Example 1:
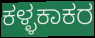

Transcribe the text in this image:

ಕಳ್ಳಕಾಕರ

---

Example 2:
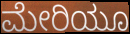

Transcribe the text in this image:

ಮೇರಿಯೂ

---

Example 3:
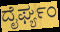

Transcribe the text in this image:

ದೈರ್ಘ್ಯಂ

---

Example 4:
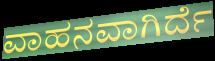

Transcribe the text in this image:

ವಾಹನವಾಗಿರ್ದೆ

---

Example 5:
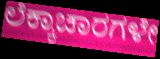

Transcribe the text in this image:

ಲೆಕ್ಕಾಚಾರಗಳೇ